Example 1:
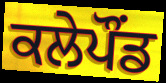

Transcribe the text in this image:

ਕਲੇਪੌਂਡ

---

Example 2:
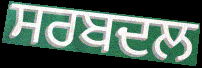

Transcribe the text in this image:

ਸਰਬਦਲ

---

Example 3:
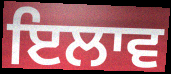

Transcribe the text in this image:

ਇਲਾਵ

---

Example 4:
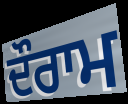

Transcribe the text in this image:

ਦੌਰਾਮ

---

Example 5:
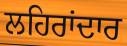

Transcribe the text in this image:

ਲਹਿਰਾਂਦਾਰ